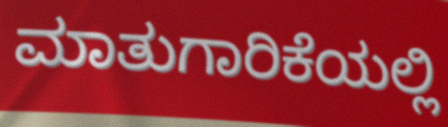
ಮಾತುಗಾರಿಕೆಯಲ್ಲಿ